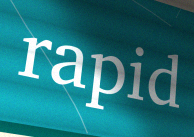
rapid